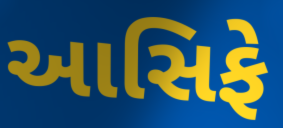
આસિફે